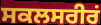
ਸਕਲਸਰੀਰਂ